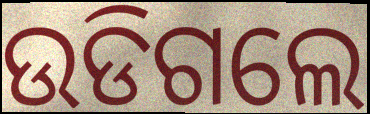
ଉଡିଗଲେ